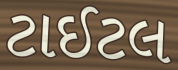
ટાઈટલ